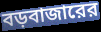
বড়বাজারের